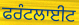
ਫਰੰਟਲਾਈਟ